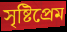
সৃষ্টিপ্রেম